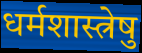
धर्मशास्त्रेषु